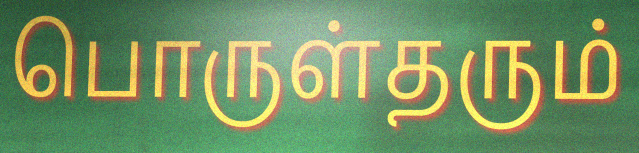
பொருள்தரும்